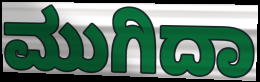
ಮುಗಿದಾ